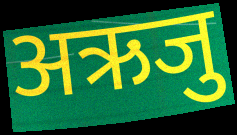
अऋजु